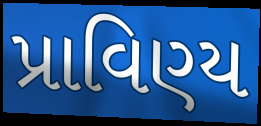
પ્રાવિણ્ય